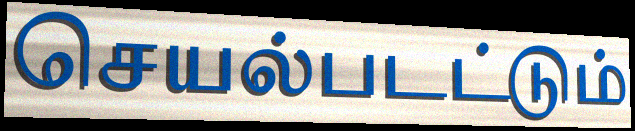
செயல்படட்டும்